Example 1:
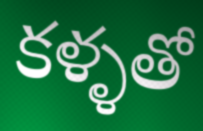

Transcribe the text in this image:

కళ్ళతో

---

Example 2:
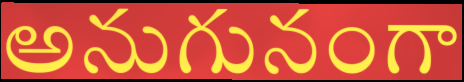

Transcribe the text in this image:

అనుగునంగా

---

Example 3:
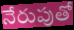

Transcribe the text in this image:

నేరుపుతో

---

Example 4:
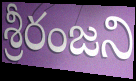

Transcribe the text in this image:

శ్రీరంజని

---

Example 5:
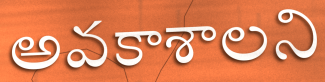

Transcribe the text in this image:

అవకాశాలని